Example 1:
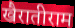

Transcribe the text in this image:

खैरातीराम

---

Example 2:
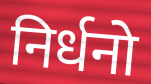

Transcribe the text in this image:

निर्धनो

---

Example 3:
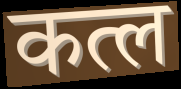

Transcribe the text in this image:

कत्ल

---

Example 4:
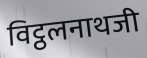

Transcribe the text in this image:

विट्ठलनाथजी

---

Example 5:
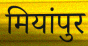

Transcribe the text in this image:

मियांपुर